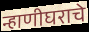
न्हाणीघराचे